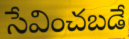
సేవించబడే